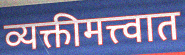
व्यक्तीमत्त्वात